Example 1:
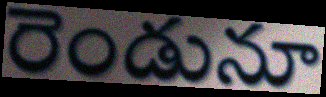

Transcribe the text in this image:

రెండునూ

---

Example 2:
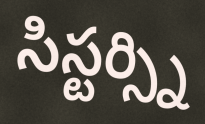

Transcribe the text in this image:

సిస్టర్స్ని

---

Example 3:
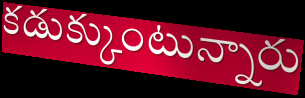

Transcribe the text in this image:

కడుక్కుంటున్నారు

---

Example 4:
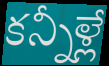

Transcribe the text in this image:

కన్నీళ్లే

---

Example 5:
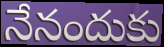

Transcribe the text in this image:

నేనందుకు